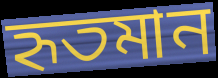
হৃতমান